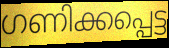
ഗണിക്കപ്പെട്ട